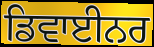
ਡਿਵਾਈਨਰ